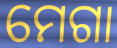
ମେଗା